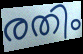
രതിം